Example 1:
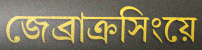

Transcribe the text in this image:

জেব্রাক্রসিংয়ে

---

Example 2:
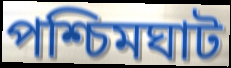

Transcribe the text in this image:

পশ্চিমঘাট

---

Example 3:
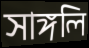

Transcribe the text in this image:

সাঙ্গলি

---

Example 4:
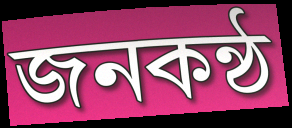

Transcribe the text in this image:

জনকন্ঠ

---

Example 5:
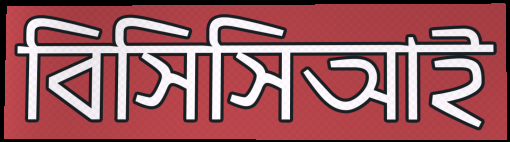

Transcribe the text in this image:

বিসিসিআই